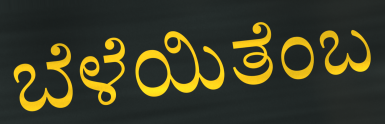
ಬೆಳೆಯಿತೆಂಬ